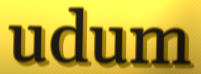
udum